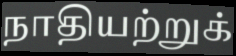
நாதியற்றுக்